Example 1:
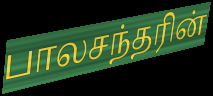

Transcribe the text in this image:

பாலசந்தரின்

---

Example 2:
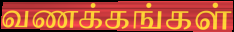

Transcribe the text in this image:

வணக்கங்கள்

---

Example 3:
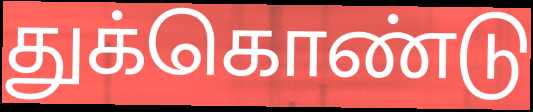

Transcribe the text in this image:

துக்கொண்டு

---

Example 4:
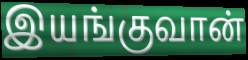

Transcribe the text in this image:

இயங்குவான்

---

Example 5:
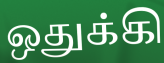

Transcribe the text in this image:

ஒதுக்கி